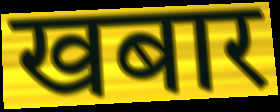
खबार